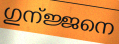
ഗുന്ജ്ജനെ